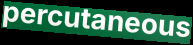
percutaneous